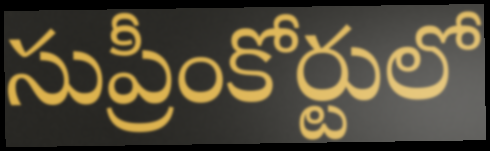
సుప్రీంకోర్టులో